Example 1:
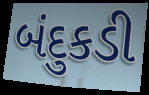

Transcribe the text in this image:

બંદુકડી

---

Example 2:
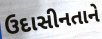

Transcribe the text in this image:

ઉદાસીનતાને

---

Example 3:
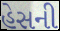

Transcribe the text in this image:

હેસની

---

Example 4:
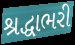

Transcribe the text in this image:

શ્રદ્ધાભરી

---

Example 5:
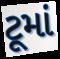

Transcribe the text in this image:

ટૂમાં